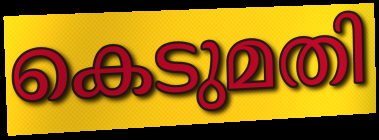
കെടുമതി